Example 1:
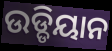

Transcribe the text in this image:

ଉଡ୍ଡିୟାନ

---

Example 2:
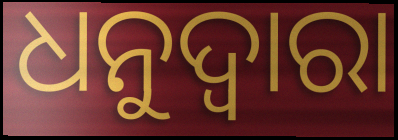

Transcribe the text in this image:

ଧନୁଦ୍ୱାରା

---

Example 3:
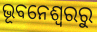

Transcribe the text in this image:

ଭୂବନେଶ୍ୱରରୁ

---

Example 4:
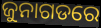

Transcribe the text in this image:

ଜୁନାଗଡରେ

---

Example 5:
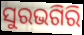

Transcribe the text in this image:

ସୁରଭଗିରି